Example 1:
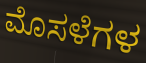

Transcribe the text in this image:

ಮೊಸಳೆಗಳ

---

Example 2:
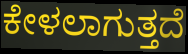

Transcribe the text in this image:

ಕೇಳಲಾಗುತ್ತದೆ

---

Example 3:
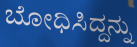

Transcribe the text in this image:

ಬೋಧಿಸಿದ್ದನ್ನು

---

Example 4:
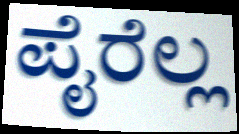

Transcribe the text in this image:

ಪೈರೆಲ್ಲ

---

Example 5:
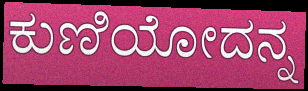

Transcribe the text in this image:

ಕುಣಿಯೋದನ್ನ